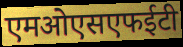
एमओएसएफईटी